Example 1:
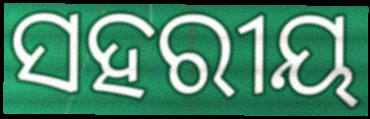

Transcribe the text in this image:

ସହରୀୟ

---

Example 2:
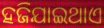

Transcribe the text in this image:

ହଜିଯାଇଥାଏ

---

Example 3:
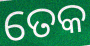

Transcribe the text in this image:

ତେକ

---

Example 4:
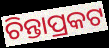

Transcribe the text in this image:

ଚିନ୍ତାପ୍ରକଟ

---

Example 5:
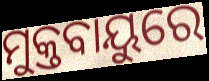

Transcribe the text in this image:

ମୁକ୍ତବାୟୁରେ